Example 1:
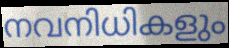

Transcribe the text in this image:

നവനിധികളും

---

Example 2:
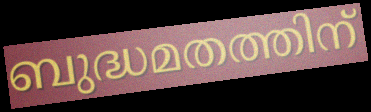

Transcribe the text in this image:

ബുദ്ധമതത്തിന്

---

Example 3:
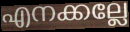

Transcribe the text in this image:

എനക്കല്ലേ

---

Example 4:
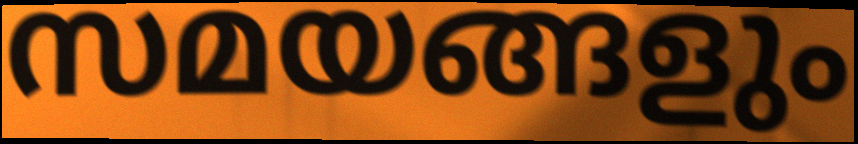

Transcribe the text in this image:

സമയങ്ങളും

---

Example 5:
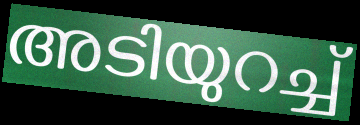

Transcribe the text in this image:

അടിയുറച്ച്